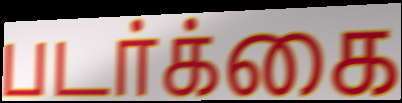
படர்க்கை